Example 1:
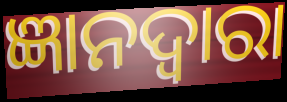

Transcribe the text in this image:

ଜ୍ଞାନଦ୍ଵାରା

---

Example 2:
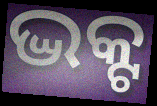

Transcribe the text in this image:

ଦ୍ଭକ୍ଟ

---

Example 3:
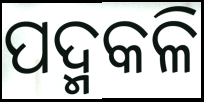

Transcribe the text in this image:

ପଦ୍ମକଳି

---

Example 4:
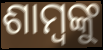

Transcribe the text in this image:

ଶାମ୍ବଙ୍କୁ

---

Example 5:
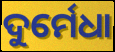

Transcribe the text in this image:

ଦୁର୍ମେଧା